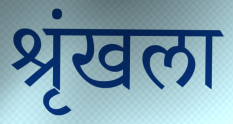
श्रृंखला